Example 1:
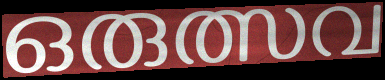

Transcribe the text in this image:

ഒരുത്സവ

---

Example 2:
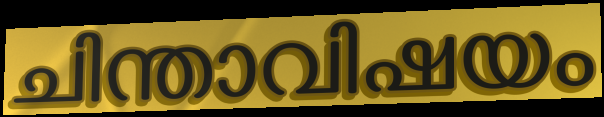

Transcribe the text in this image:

ചിന്താവിഷയം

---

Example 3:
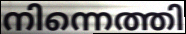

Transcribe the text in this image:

നിന്നെത്തി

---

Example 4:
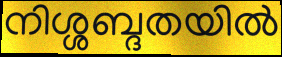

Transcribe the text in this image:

നിശ്ശബ്ദതയിൽ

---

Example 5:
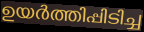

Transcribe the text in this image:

ഉയർത്തിപ്പിടിച്ച